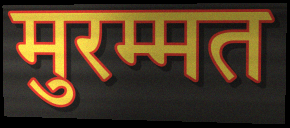
मुरम्मत